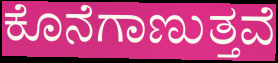
ಕೊನೆಗಾಣುತ್ತವೆ